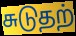
சுடுதற்